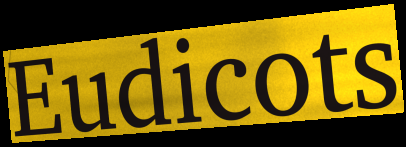
Eudicots